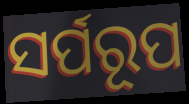
ସର୍ପରୂପ